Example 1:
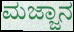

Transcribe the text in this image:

ಮಜ್ಜಾನ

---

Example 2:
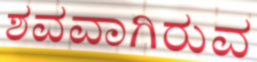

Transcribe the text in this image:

ಶವವಾಗಿರುವ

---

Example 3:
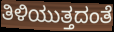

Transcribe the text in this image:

ತಿಳಿಯುತ್ತದಂತೆ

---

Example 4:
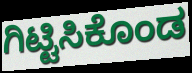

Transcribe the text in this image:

ಗಿಟ್ಟಿಸಿಕೊಂಡ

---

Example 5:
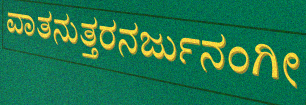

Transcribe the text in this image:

ವಾತನುತ್ತರನರ್ಜುನಂಗೀ